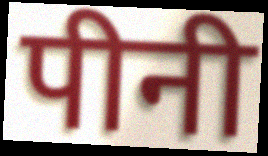
पीनी